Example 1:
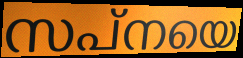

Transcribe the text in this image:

സപ്‌നയെ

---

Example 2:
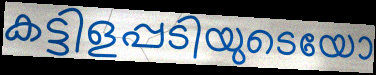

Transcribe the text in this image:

കട്ടിളപ്പടിയുടെയോ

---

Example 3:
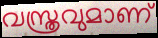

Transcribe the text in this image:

വസ്ത്രവുമാണ്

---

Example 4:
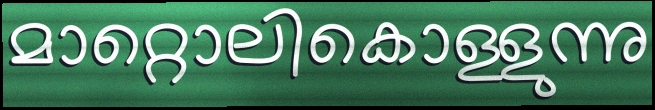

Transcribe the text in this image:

മാറ്റൊലികൊള്ളുന്നു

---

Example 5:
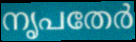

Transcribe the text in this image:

നൃപതേർ